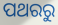
ପଥରରୁ